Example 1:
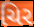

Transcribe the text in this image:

ચિર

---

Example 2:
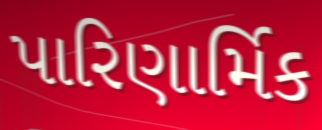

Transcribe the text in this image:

પારિણાર્મિક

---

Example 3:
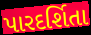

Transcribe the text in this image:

પારદર્શિતા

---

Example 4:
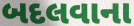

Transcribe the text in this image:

બદલવાના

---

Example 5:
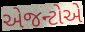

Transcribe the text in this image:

એજન્ટોએ